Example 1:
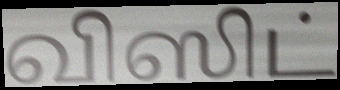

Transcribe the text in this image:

விஸிட்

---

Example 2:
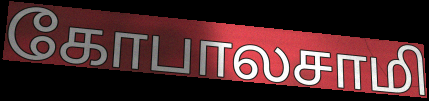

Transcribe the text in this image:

கோபாலசாமி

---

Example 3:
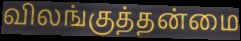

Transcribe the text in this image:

விலங்குத்தன்மை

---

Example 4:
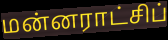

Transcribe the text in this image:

மன்னராட்சிப்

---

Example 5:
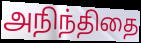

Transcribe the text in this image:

அநிந்திதை